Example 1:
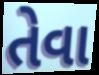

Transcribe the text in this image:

તેવા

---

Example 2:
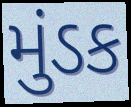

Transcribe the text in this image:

મુંડક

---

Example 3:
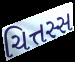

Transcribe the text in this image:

ચિત્તસ્સ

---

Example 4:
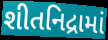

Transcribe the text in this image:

શીતનિદ્રામાં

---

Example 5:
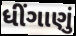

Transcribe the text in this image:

ધીંગાણું